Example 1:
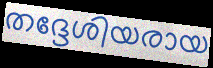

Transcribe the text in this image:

തദ്ദേശിയരായ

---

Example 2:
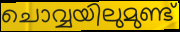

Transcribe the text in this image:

ചൊവ്വയിലുമുണ്ട്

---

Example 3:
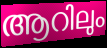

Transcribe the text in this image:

ആറിലും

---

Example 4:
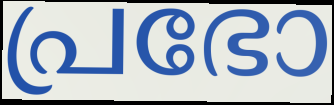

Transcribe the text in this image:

പ്രഭോ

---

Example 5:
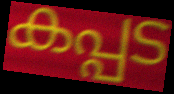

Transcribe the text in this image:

കപ്പട